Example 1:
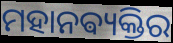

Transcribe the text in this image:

ମହାନଵ୍ୟକ୍ତିର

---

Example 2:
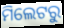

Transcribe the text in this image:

ମିଲେଟରୁ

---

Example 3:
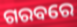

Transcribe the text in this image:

ଗରବରେ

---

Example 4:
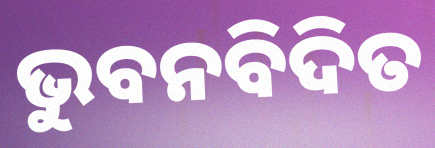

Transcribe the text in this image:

ଭୁବନବିଦିତ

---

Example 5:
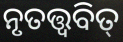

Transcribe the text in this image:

ନୃତତ୍ତ୍ୱବିତ୍